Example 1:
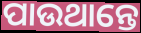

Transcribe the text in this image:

ପାଉଥାନ୍ତେ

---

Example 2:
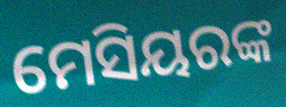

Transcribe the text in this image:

ମେସିୟରଙ୍କ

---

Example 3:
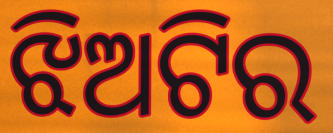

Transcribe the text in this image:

ଝିଅଟିର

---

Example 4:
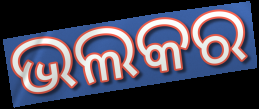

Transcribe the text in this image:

ଭଲକର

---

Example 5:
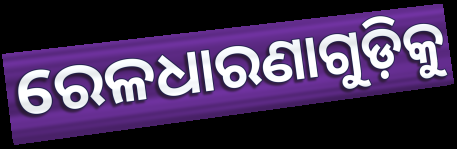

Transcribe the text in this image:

ରେଳଧାରଣାଗୁଡ଼ିକୁ